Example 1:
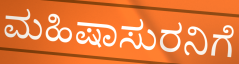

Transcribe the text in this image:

ಮಹಿಷಾಸುರನಿಗೆ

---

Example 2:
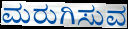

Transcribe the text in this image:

ಮರುಗಿಸುವ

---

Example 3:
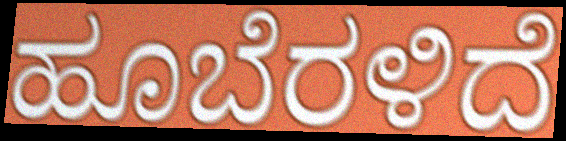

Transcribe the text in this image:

ಹೂಬೆರಳಿದೆ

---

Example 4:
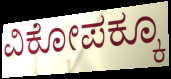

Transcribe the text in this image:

ವಿಕೋಪಕ್ಕೂ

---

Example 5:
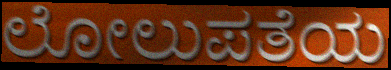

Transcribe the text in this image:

ಲೋಲುಪತೆಯ